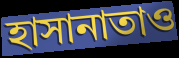
হাসানাতাও